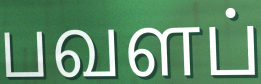
பவளப்